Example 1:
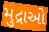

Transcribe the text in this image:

મુદ્રાઓ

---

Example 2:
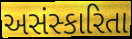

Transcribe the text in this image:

અસંસ્કારિતા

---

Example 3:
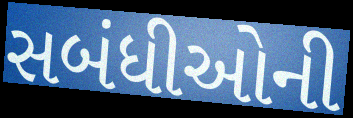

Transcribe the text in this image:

સબંધીઓની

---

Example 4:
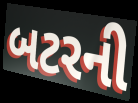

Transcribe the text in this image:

બટરની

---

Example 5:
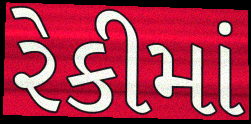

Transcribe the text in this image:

રેકીમાં